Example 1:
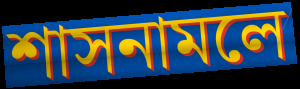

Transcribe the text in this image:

শাসনামলে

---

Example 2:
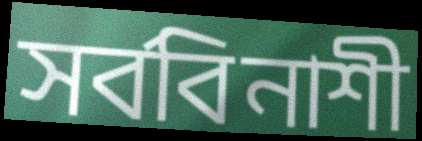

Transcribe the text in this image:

সর্ববিনাশী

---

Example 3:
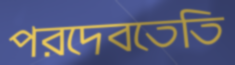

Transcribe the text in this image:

পরদেবতেতি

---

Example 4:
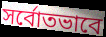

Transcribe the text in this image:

সর্বোতভাবে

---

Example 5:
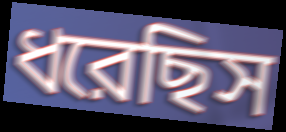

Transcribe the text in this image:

ধরেছিস